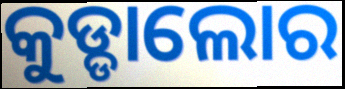
କୁଡ୍ଡାଲୋର